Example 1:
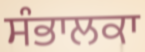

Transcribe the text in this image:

ਸੰਭਾਲਕਾ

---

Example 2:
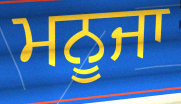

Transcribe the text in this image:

ਮਨੂਜਾ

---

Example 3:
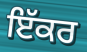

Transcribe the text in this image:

ਇੱਕਰ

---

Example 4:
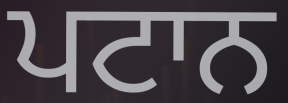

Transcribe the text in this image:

ਪਟਾਨ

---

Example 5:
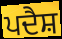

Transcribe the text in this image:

ਪਦੈਸ਼